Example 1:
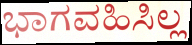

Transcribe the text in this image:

ಭಾಗವಹಿಸಿಲ್ಲ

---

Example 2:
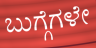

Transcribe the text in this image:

ಬುಗ್ಗೆಗಳೇ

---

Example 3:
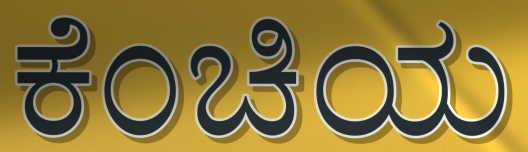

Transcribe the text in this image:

ಕೆಂಚಿಯ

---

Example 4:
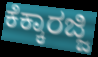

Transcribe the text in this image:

ಕೆಕ್ಕಾರಜ್ಜಿ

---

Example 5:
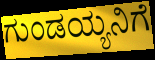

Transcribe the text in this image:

ಗುಂಡಯ್ಯನಿಗೆ